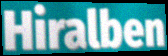
Hiralben